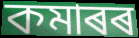
কমাৰৰ